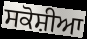
ਸਕੋਸ਼ੀਆ